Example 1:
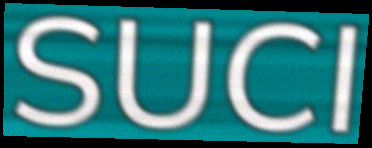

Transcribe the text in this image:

SUCI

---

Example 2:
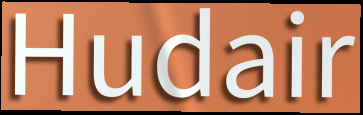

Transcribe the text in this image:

Hudair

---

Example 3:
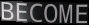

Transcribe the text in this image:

BECOME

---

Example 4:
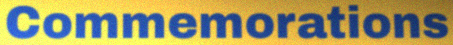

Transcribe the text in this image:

Commemorations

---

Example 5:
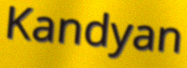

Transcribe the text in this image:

Kandyan